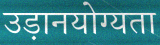
उड़ानयोग्यता